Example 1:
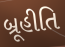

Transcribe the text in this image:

બ્રૂહીતિ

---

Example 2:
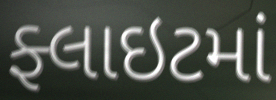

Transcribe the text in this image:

ફ્લાઇટમાં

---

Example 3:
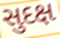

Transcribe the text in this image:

સુદક્ષ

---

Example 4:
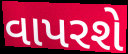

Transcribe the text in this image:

વાપરશે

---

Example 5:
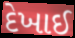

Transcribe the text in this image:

દેખાઈ